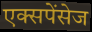
एक्सपेंसेज